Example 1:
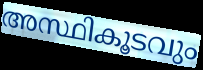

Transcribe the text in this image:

അസ്ഥികൂടവും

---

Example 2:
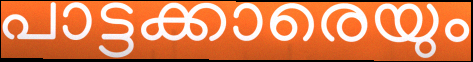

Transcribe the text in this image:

പാട്ടക്കാരെയും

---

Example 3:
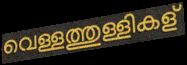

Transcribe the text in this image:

വെള്ളത്തുള്ളികള്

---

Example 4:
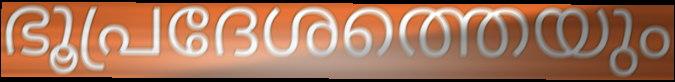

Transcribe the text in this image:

ഭൂപ്രദേശത്തെയും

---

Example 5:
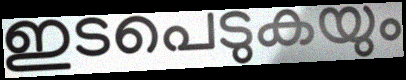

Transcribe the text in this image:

ഇടപെടുകയും